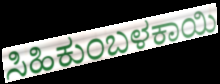
ಸಿಹಿಕುಂಬಳಕಾಯಿ